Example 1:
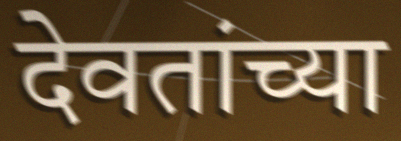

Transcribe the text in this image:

देवतांच्या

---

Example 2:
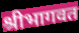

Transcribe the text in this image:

श्रीभागवत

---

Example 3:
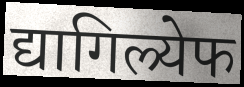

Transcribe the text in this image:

द्यागिल्येफ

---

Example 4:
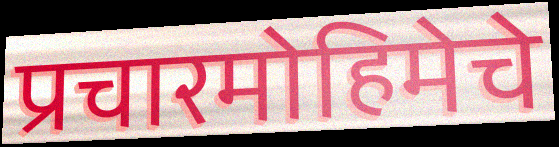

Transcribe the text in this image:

प्रचारमोहिमेचे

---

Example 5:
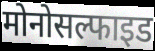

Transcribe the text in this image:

मोनोसल्फाइड